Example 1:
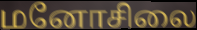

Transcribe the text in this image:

மனோசிலை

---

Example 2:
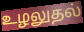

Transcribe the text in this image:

உழலுதல்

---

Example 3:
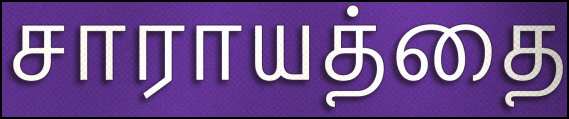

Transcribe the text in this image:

சாராயத்தை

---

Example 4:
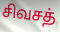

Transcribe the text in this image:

சிவசத்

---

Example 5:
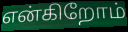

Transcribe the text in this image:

என்கிறோம்